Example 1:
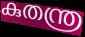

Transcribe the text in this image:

കുതന്ത്ര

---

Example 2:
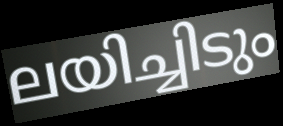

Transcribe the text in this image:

ലയിച്ചിടും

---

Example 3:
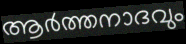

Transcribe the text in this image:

ആർത്തനാദവും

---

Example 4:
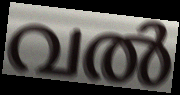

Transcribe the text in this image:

വൽ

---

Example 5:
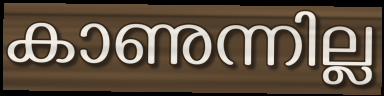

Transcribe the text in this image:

കാണുന്നില്ല